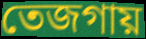
তেজগায়